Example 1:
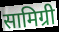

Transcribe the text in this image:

सामिग्री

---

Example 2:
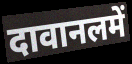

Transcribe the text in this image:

दावानलमें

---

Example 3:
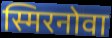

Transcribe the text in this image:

स्मिरनोवा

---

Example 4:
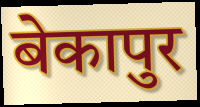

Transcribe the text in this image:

बेकापुर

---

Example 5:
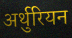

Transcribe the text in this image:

अर्थुरियन